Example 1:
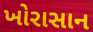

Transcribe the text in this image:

ખોરાસાન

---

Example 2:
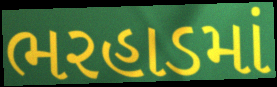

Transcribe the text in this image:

ભરહાડમાં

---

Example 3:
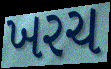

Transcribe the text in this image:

ખરચ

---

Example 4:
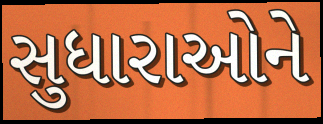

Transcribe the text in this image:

સુધારાઓને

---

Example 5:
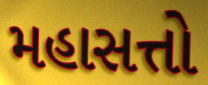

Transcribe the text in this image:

મહાસત્તો